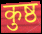
कुष्ठ